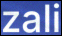
zali